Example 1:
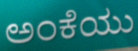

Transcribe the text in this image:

ಅಂಕೆಯು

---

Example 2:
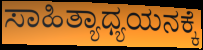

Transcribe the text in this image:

ಸಾಹಿತ್ಯಾಧ್ಯಯನಕ್ಕೆ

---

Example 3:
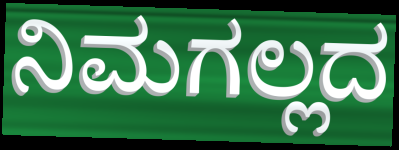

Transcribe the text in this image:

ನಿಮಗಲ್ಲದ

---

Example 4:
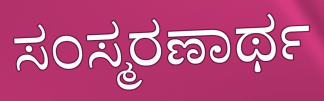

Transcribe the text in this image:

ಸಂಸ್ಮರಣಾರ್ಥ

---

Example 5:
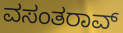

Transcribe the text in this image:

ವಸಂತರಾವ್